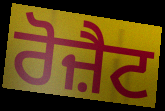
ਰੋਜ਼ੈਟ